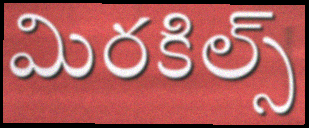
మిరకిల్స్